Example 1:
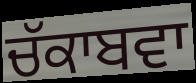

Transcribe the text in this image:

ਚੱਕਾਬਵਾ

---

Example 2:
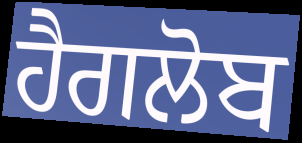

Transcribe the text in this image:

ਹੈਗਲੋਬ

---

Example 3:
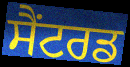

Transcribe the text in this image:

ਸੈਂਟਰਡ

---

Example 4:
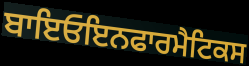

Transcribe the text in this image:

ਬਾਇਓਇਨਫਾਰਮੈਟਿਕਸ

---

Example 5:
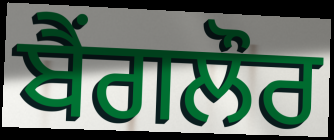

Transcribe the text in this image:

ਬੈੰਗਲੌਰ